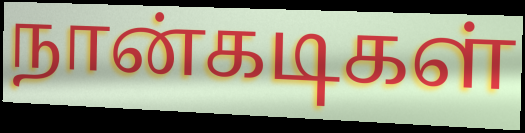
நான்கடிகள்